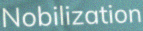
Nobilization